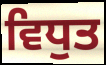
ਵਿਧੁਤ